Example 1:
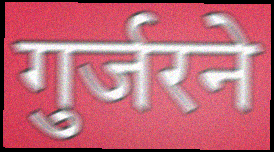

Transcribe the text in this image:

गुर्जरने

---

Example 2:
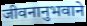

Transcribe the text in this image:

जीवनानुभवाने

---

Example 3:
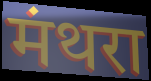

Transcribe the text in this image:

मंथरा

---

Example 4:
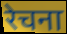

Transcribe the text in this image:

रेचना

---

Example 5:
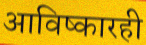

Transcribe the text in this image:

आविष्कारही